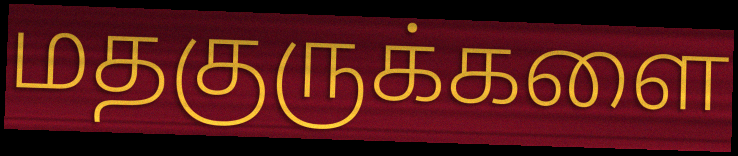
மதகுருக்களை